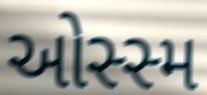
ઓસ્સ્મ